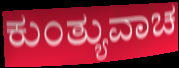
ಕುಂತ್ಯುವಾಚ